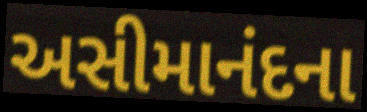
અસીમાનંદના